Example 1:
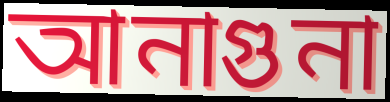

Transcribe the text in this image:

আনাগুনা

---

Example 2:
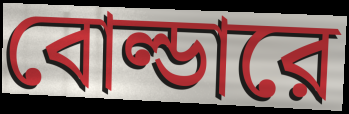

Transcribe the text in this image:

বোল্ডারে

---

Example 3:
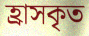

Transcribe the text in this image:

হ্রাসকৃত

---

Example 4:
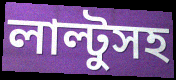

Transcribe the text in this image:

লাল্টুসহ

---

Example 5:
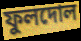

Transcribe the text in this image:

ফুলদোল